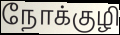
நோக்குழி